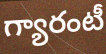
గ్యారంటీ